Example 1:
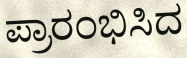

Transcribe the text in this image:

ಪ್ರಾರಂಭಿಸಿದ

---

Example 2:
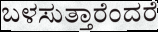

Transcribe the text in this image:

ಬಳಸುತ್ತಾರೆಂದರೆ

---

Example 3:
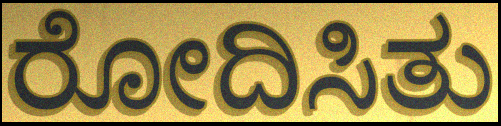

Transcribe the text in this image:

ರೋದಿಸಿತು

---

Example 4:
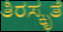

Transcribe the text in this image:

ತಿರಸ್ಕೃತೆ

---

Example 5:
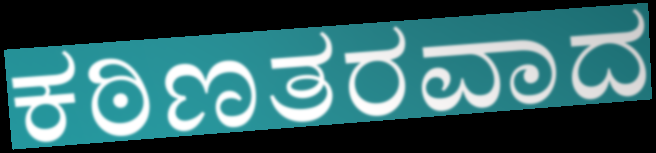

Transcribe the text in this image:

ಕಠಿಣತರವಾದ